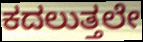
ಕದಲುತ್ತಲೇ